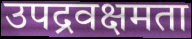
उपद्रवक्षमता